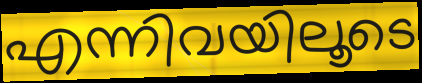
എന്നിവയിലൂടെ